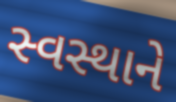
સ્વસ્થાને